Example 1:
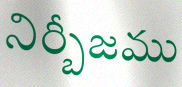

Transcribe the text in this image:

నిర్బీజము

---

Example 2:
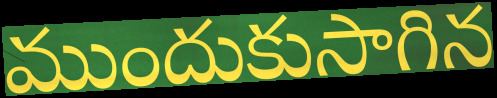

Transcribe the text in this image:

ముందుకుసాగిన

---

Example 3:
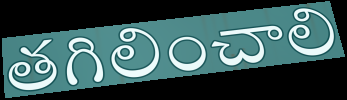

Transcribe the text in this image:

తగిలించాలి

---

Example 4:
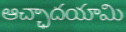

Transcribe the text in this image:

ఆచ్ఛాదయామి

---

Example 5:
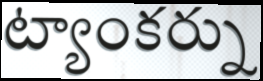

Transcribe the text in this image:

ట్యాంకర్ను